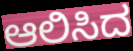
ಆಲಿಸಿದ